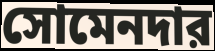
সোমেনদার